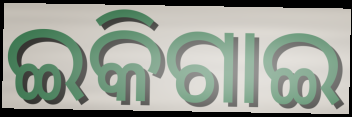
ଇକିଗାଇ